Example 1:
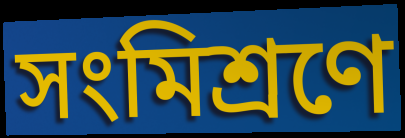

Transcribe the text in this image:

সংমিশ্ৰণে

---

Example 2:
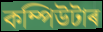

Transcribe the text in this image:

কম্পিউটাৰ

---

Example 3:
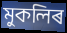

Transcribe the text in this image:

মুকলিৰ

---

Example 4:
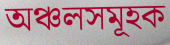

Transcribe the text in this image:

অঞ্চলসমূহক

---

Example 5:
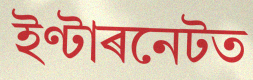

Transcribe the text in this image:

ইণ্টাৰনেটত